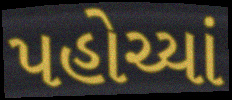
પહોચ્યાં